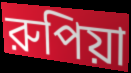
রুপিয়া